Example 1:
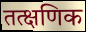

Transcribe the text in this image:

तत्क्षणिक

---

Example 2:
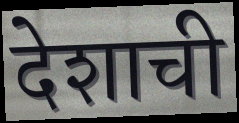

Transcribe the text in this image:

देशाची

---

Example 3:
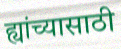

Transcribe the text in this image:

ह्यांच्यासाठी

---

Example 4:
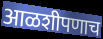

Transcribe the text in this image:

आळशीपणाच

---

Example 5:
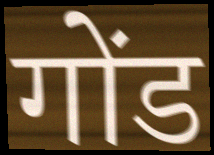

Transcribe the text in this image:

गोंड